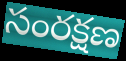
సంరక్షణ